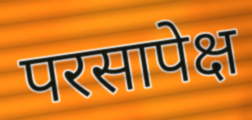
परसापेक्ष